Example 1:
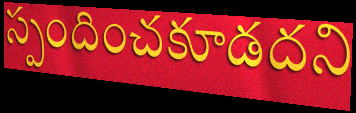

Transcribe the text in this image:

స్పందించకూడదని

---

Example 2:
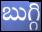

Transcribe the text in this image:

బుగ్గి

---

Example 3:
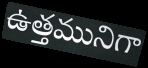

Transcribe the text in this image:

ఉత్తమునిగా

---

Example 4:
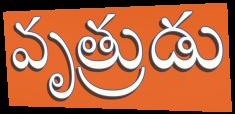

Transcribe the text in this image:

వృత్రుడు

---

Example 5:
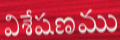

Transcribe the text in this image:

విశేషణము